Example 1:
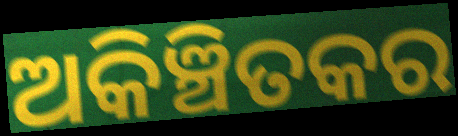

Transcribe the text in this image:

ଅକିଞ୍ଚିତକର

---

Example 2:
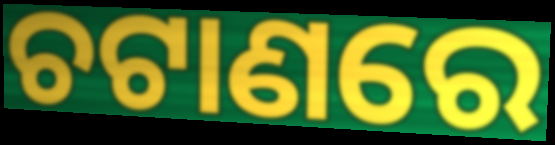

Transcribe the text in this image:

ଚଟାଣରେ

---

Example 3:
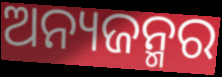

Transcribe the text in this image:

ଅନ୍ୟଜନ୍ମର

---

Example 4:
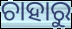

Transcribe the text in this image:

ଚାହାରୁ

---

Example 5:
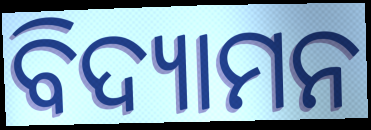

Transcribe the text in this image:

ବିଦ୍ୟାମନ